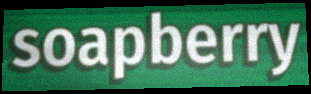
soapberry